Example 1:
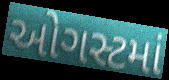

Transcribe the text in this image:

ઓગસ્ટમાં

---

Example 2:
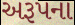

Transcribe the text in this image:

અરૂપના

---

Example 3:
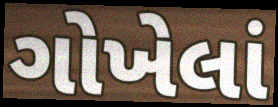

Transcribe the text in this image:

ગોખેલાં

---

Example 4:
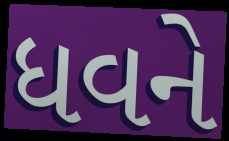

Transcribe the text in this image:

ધવને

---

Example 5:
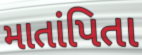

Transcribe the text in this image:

માતાંપિતા